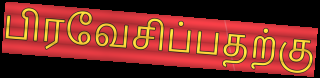
பிரவேசிப்பதற்கு